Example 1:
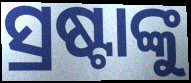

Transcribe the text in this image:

ସ୍ରଷ୍ଟାଙ୍କୁ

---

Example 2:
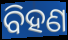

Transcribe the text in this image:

ବିହଣ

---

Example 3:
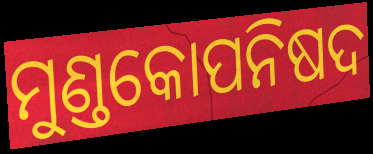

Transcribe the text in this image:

ମୁଣ୍ଡକୋପନିଷଦ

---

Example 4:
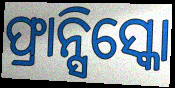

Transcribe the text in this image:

ଫ୍ରାନ୍ସିସ୍କୋ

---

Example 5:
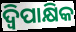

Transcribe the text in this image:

ଦ୍ବିପାକ୍ଷିକ